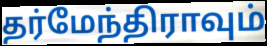
தர்மேந்திராவும்